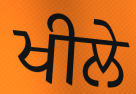
ਖੀਲੇ